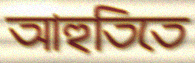
আহুতিতে